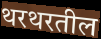
थरथरतील